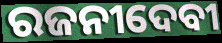
ରଜନୀଦେବୀ